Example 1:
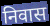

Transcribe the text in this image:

निवास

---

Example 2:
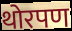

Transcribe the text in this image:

थोरपण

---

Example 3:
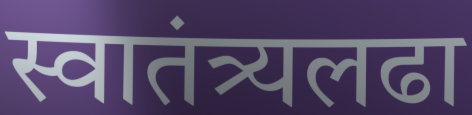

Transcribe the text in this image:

स्वातंत्र्यलढा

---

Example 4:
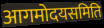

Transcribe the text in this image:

आगमोदयसमिति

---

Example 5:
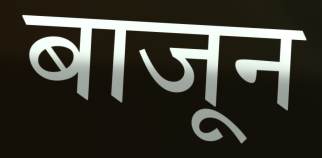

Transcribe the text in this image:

बाजून